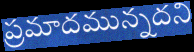
ప్రమాదమున్నదని